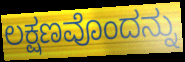
ಲಕ್ಷಣವೊಂದನ್ನು